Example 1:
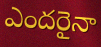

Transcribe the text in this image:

ఎందరైనా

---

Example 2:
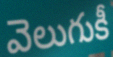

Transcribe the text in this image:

వెలుగుకీ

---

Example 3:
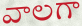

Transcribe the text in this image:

వాలగా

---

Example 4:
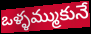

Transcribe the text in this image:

ఒళ్ళమ్ముకునే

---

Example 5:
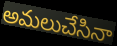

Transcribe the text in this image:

అమలుచేసినా